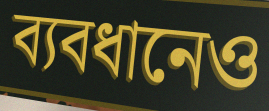
ব্যবধানেও